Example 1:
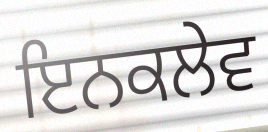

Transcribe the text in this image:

ਇਨਕਲੇਵ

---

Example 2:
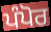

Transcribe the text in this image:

ਪੰਪੋਰ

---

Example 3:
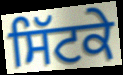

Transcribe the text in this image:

ਸਿੱਟਕੇ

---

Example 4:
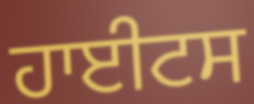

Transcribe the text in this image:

ਹਾਈਟਸ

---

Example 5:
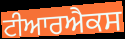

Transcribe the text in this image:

ਟੀਆਰਐਕਸ